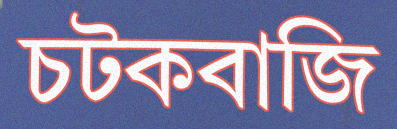
চটকবাজি